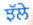
ਝੱਲੇ